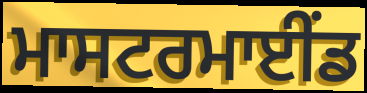
ਮਾਸਟਰਮਾਈੰਡ